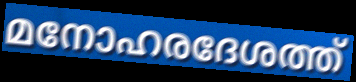
മനോഹരദേശത്ത്